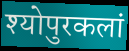
श्योपुरकलां